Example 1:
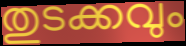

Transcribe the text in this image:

തുടക്കവും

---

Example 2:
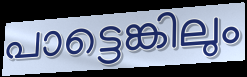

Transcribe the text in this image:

പാട്ടെങ്കിലും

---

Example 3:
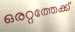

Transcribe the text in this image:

ഒരറ്റത്തേക്ക്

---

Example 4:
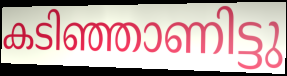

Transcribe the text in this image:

കടിഞ്ഞാണിട്ടു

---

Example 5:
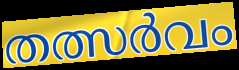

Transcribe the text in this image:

തത്സർവം